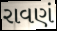
રાવણં